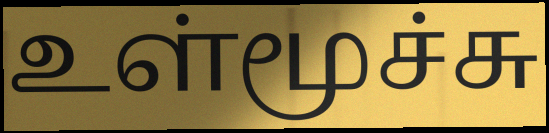
உள்மூச்சு